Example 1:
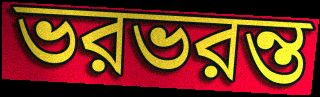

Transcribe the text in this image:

ভরভরন্ত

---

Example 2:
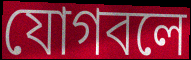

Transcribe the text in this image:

যোগবলে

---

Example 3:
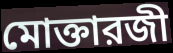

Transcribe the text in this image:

মোক্তারজী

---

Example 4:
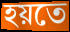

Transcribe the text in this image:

হয়তে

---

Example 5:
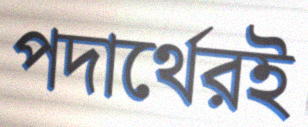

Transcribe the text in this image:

পদার্থেরই